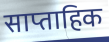
साप्ताहिक